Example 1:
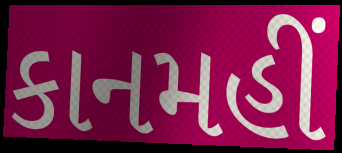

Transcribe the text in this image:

કાનમહીં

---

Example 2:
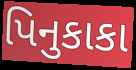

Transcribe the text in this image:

પિનુકાકા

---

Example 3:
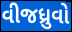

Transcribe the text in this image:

વીજધ્રુવો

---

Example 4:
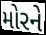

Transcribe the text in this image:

મોરને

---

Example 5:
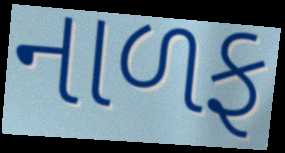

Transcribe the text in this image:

નાળફ